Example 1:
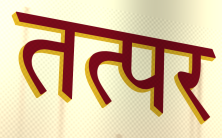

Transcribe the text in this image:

तत्पर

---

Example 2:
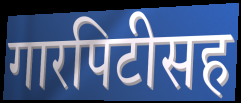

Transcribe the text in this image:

गारपिटीसह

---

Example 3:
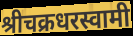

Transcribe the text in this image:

श्रीचक्रधरस्वामी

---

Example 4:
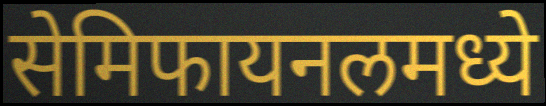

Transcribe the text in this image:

सेमिफायनलमध्ये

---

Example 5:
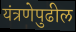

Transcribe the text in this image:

यंत्रणेपुढील